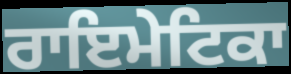
ਰਾਇਮੇਟਿਕਾ